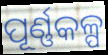
ପୂର୍ଣ୍ଣକଳ୍ପ